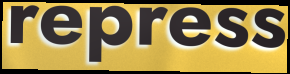
repress